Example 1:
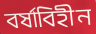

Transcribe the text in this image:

বর্ষাবিহীন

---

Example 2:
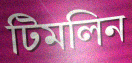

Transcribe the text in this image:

টিমলিন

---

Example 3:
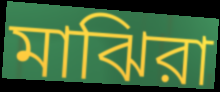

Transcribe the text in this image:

মাঝিরা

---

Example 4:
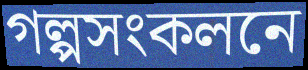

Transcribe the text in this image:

গল্পসংকলনে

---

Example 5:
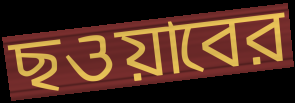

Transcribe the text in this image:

ছওয়াবের